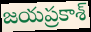
జయప్రకాశ్